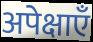
अपेक्षाएँ